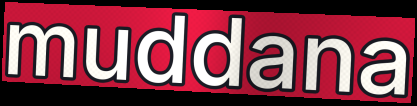
muddana